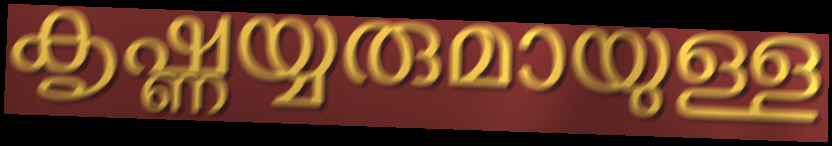
കൃഷ്ണയ്യരുമായുള്ള